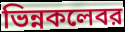
ভিন্নকলেবর